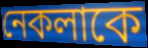
নেকলাকে